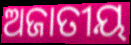
ଅଜାତୀୟ